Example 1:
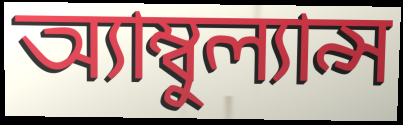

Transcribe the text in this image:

অ্যাম্বুল্যান্স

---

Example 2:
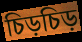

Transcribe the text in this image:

চিড়চিড়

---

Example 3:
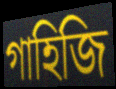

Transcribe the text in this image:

গাহিজি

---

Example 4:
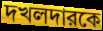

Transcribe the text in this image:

দখলদারকে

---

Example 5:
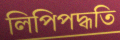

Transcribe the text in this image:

লিপিপদ্ধতি